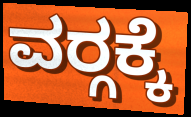
ವರ‍್ಗಕ್ಕೆ